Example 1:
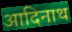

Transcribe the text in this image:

आदिनाथ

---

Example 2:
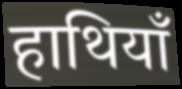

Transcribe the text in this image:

हाथियाँ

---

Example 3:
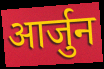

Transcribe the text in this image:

आर्जुन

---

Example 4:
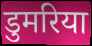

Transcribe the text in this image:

डुमरिया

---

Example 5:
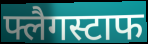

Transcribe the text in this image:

फ्लैगस्टाफ